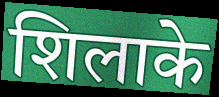
शिलाके